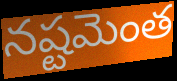
నష్టమెంత